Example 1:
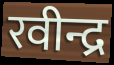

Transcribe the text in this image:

रवीन्द्र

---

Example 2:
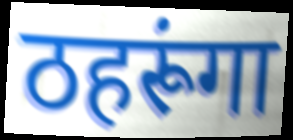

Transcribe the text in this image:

ठहरूंगा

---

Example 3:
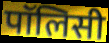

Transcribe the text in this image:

पॉलिसी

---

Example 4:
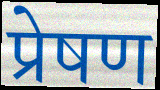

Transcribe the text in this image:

प्रेषण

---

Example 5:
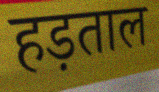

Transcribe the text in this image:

हड़ताल